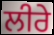
ਲੀਰੇ